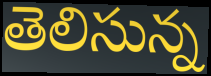
తెలిసున్న